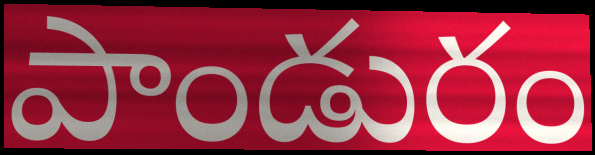
పాండురం